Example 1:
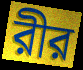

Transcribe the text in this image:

রীর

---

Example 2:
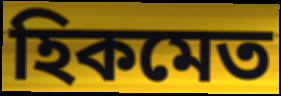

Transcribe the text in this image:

হিকমেত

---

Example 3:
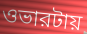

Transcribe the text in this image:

ওভারটায়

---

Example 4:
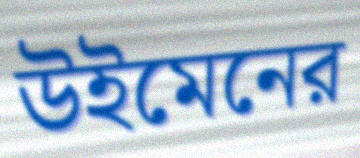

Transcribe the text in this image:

উইমেনের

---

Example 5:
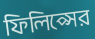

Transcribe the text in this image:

ফিলিপ্সের